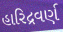
હારિદ્રવર્ણ